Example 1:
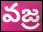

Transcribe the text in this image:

వజ్ర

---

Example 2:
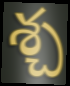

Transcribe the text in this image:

శ్చ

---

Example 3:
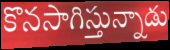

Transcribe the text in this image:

కొనసాగిస్తున్నాడు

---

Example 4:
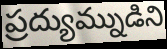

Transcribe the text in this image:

ప్రద్యుమ్నుడిని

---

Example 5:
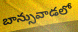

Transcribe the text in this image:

బాన్సువాడలో